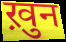
ख़ुन